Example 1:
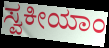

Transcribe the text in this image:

ಸ್ವಕೀಯಾಂ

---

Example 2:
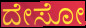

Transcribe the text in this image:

ದೇಸೋ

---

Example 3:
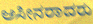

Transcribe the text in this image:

ಆಸೀನರಾದರು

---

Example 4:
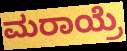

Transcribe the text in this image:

ಮರಾಯ್ರೆ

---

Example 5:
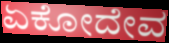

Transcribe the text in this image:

ಏಕೋದೇವ